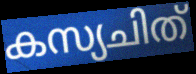
കസ്യചിത്